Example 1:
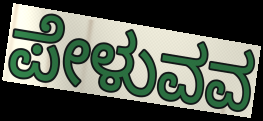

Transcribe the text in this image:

ಪೇಳುವವ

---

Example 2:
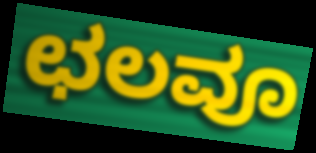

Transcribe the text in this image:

ಛಲವೂ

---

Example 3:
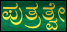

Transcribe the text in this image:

ಪುತ್ರತ್ವೇ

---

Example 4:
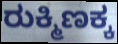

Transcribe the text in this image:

ರುಕ್ಮಿಣಕ್ಕ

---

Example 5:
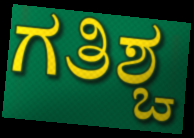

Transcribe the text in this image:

ಗತಿಶ್ಚ